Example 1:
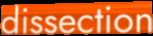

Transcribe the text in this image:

dissection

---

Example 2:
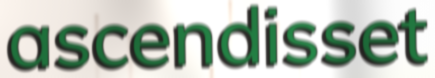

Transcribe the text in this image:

ascendisset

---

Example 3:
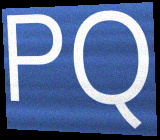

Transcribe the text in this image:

PQ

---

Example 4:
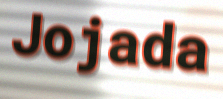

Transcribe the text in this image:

Jojada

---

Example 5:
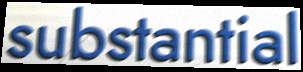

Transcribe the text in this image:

substantial